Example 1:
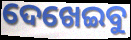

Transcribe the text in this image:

ଦେଖେଇବୁ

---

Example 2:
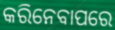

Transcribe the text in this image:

କରିନେବାପରେ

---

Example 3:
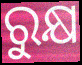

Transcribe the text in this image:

ରୁକ୍ଷ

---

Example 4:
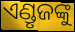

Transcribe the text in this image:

ଏଣ୍ଡୃଜଙ୍କୁ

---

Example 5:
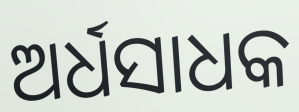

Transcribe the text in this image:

ଅର୍ଧସାଧକ